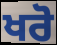
ਖਰੋ